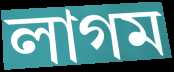
লাগম